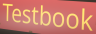
Testbook